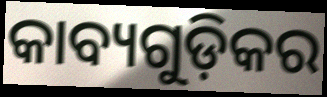
କାବ୍ୟଗୁଡ଼ିକର